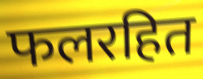
फलरहित